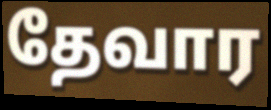
தேவார